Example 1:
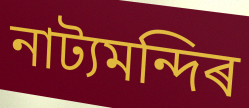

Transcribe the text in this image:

নাট্যমন্দিৰ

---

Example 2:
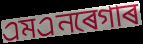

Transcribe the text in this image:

এমএনৰেগাৰ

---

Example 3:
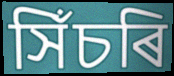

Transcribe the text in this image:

সিঁচৰি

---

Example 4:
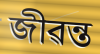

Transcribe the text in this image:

জীৱন্ত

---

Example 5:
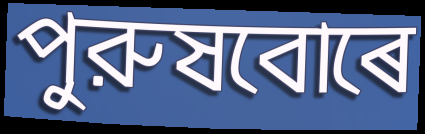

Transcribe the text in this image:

পুৰুষবোৰে